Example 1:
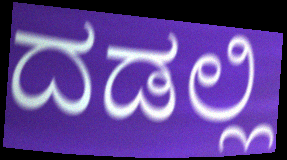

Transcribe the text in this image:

ದಡಲ್ಲಿ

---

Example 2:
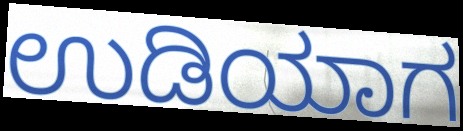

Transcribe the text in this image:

ಉಡಿಯಾಗ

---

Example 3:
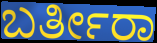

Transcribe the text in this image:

ಬರ್ತೀರಾ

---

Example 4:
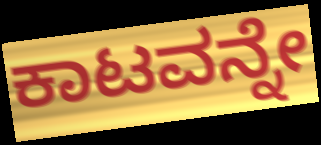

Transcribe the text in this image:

ಕಾಟವನ್ನೇ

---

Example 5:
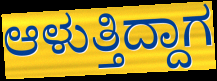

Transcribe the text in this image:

ಆಳುತ್ತಿದ್ದಾಗ